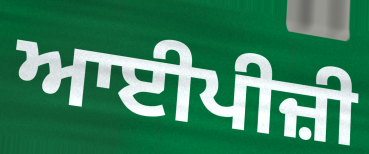
ਆਈਪੀਜ਼ੀ